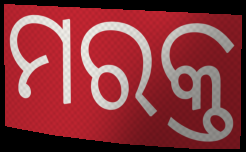
ମରକ୍ତ